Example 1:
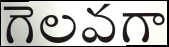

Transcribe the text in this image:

గెలవగా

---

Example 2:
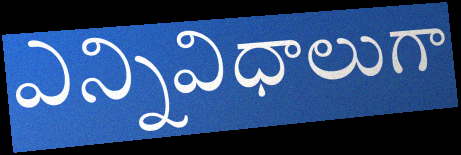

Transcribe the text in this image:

ఎన్నివిధాలుగా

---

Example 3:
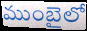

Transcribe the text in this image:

ముంబైలో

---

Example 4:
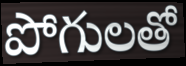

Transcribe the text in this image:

పోగులతో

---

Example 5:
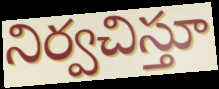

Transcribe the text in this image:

నిర్వచిస్తూ